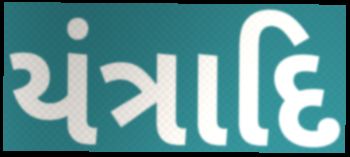
યંત્રાદિ